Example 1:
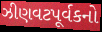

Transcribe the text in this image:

ઝીણવટપૂર્વકનો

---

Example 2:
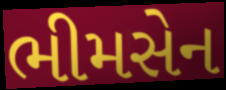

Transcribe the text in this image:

ભીમસેન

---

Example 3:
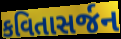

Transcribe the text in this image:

કવિતાસર્જન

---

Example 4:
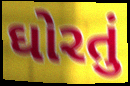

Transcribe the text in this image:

ઘોરતું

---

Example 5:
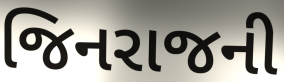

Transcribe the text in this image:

જિનરાજની